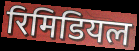
रिमिडियल